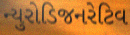
ન્યુરોડિજનરેટિવ